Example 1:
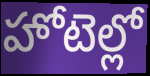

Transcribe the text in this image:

హోటెల్లో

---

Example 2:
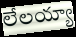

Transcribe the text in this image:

లేలయ్యా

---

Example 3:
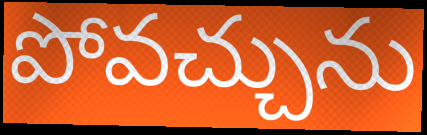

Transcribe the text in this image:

పోవచ్చును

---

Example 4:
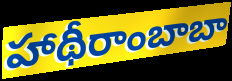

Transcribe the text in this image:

హాథీరాంబాబా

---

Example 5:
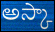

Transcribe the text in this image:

అస్కా